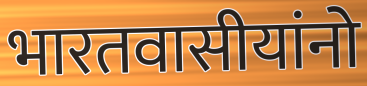
भारतवासीयांनो